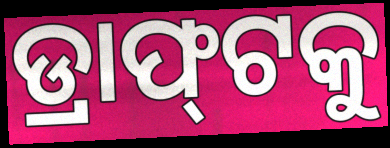
ଡ୍ରାଫ୍‌ଟକୁ